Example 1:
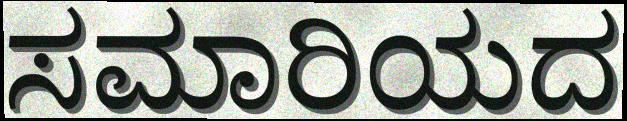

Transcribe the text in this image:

ಸಮಾರಿಯದ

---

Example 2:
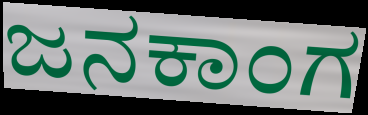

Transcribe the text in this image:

ಜನಕಾಂಗ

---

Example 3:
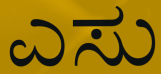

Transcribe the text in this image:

ಎಸು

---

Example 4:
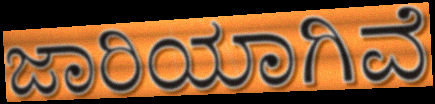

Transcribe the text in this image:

ಜಾರಿಯಾಗಿವೆ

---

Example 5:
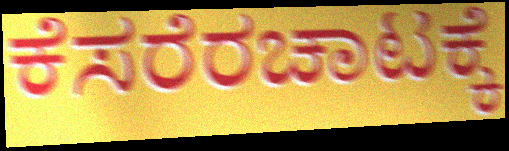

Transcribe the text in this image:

ಕೆಸರೆರಚಾಟಕ್ಕೆ